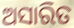
ଅସାରିତ